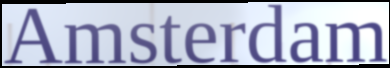
Amsterdam